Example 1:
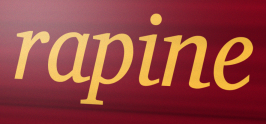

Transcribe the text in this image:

rapine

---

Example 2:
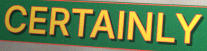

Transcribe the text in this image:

CERTAINLY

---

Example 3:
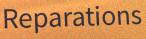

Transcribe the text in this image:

Reparations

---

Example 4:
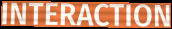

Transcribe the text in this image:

INTERACTION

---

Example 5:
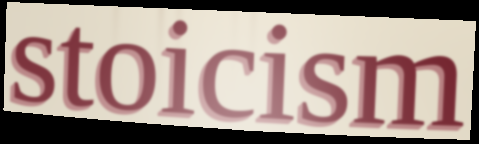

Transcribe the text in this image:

stoicism